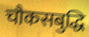
चौकसबुद्धि